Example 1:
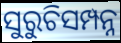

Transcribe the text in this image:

ସୁରୁଚିସମ୍ପନ୍ନ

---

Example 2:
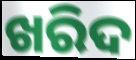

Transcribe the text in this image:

ଖରିଦ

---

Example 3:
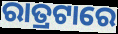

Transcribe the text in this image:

ରାତ୍ରଟାରେ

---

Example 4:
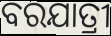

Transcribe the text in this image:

ବରଯାତ୍ରୀ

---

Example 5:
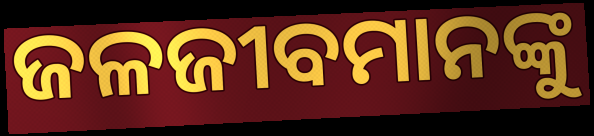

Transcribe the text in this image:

ଜଳଜୀବମାନଙ୍କୁ